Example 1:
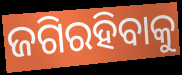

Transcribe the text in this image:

ଜଗିରହିବାକୁ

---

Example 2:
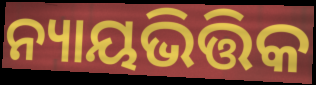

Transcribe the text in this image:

ନ୍ୟାୟଭିତ୍ତିକ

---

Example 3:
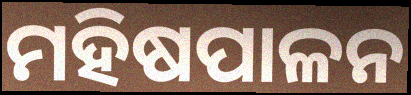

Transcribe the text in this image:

ମହିଷପାଳନ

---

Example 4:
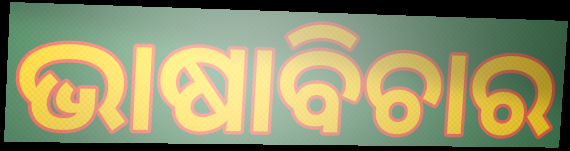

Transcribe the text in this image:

ଭାଷାବିଚାର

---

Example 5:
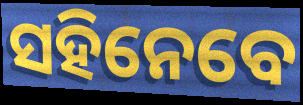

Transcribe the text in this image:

ସହିନେବେ